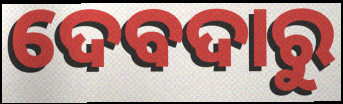
ଦେବଦାରୁ